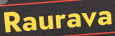
Raurava